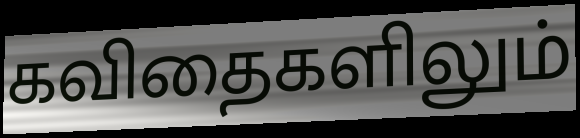
கவிதைகளிலும்